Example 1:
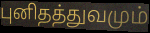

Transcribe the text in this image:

புனிதத்துவமும்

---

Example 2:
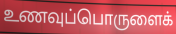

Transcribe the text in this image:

உணவுப்பொருளைக்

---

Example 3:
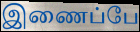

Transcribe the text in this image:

இணைப்பே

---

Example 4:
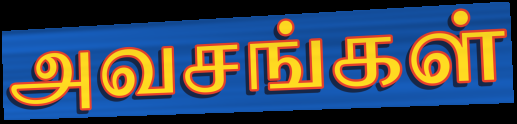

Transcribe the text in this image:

அவசங்கள்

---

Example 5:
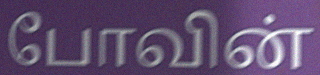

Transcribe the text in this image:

போவின்